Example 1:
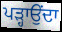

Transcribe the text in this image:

ਪੜ੍ਹਾਉਂਦਾ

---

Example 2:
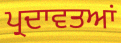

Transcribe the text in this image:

ਪ੍ਰਦਾਵਤਆਂ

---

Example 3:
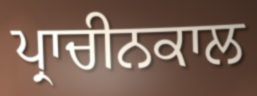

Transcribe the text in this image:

ਪ੍ਰਾਚੀਨਕਾਲ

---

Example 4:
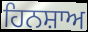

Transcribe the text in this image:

ਹਿਨਸ਼ਾਅ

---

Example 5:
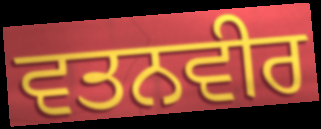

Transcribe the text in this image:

ਵਤਨਵੀਰ